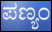
ಪಣ್ಯಂ